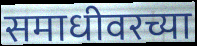
समाधीवरच्या